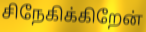
சிநேகிக்கிறேன்